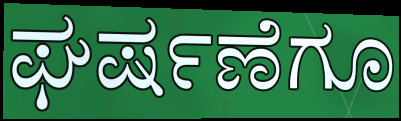
ಘರ್ಷಣೆಗೂ